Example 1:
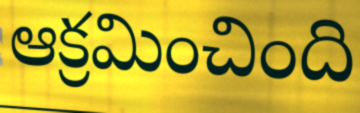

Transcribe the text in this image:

ఆక్రమించింది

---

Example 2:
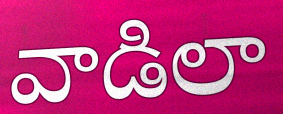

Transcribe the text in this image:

వాడిలా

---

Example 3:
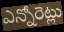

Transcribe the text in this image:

ఎన్నోరెట్లు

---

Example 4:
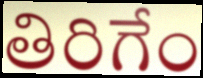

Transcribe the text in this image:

తిరిగేం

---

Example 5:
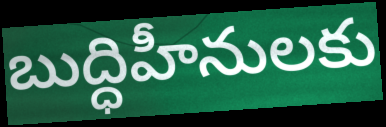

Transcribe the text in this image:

బుద్ధిహీనులకు